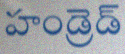
హండ్రెడ్